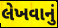
લેખવાનું